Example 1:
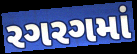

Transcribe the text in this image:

રગરગમાં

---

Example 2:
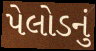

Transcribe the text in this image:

પેલોડનું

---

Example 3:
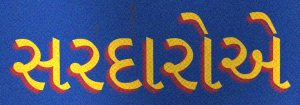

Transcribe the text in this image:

સરદારોએ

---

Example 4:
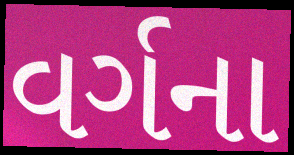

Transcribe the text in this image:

વર્ગના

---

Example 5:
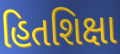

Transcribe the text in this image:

હિતશિક્ષા